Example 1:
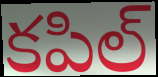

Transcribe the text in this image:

కపిల్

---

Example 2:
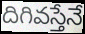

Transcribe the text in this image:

దిగివస్తేనే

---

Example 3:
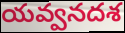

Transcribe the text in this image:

యవ్వనదశ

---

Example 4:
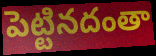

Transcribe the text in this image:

పెట్టినదంతా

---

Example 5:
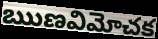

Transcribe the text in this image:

ఋణవిమోచక